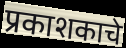
प्रकाशकाचे